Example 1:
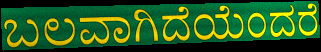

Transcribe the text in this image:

ಬಲವಾಗಿದೆಯೆಂದರೆ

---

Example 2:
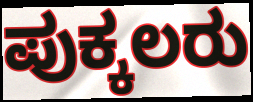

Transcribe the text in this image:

ಪುಕ್ಕಲರು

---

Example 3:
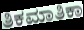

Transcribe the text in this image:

ತಿಕಮಾತಿಕಾ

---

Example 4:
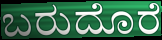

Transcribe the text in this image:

ಬರುದೊರೆ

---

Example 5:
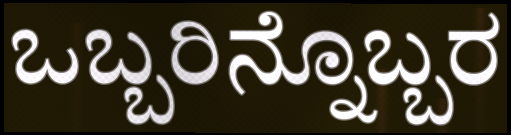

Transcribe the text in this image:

ಒಬ್ಬರಿನ್ನೊಬ್ಬರ